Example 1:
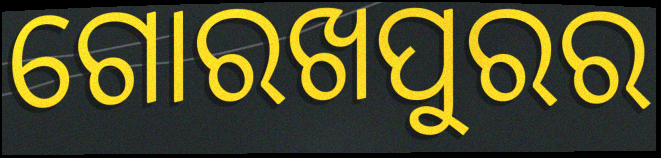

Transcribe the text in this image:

ଗୋରଖପୁରର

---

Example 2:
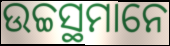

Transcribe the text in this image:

ଉଚ୍ଚସ୍ଥମାନେ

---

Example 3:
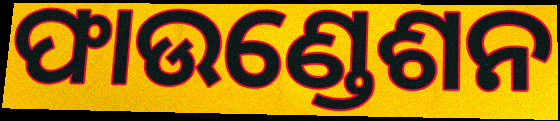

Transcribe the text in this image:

ଫାଉଣ୍ଡେଶନ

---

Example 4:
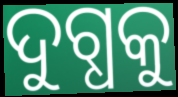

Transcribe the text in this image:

ଦୁଗ୍ଧକୁ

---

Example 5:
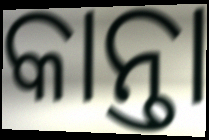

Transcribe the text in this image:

କାନ୍ତା